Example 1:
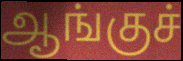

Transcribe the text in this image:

ஆங்குச்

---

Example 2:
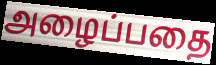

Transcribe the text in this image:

அழைப்பதை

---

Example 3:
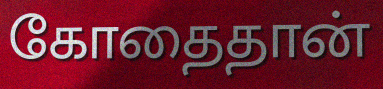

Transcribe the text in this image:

கோதைதான்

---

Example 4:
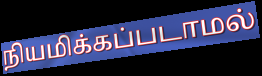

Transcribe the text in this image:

நியமிக்கப்படாமல்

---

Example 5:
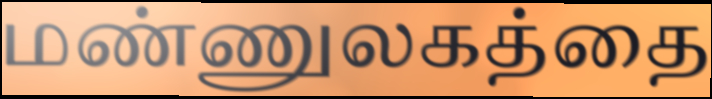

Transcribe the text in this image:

மண்ணுலகத்தை